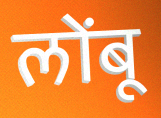
लोंबू